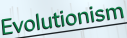
Evolutionism